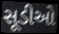
સૂડીઓ